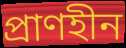
প্রাণহীন